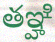
తఞ్హి